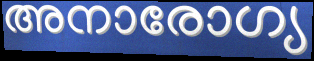
അനാരോഗ്യ